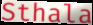
Sthala